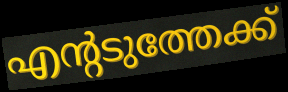
എന്റടുത്തേക്ക്